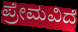
ಪ್ರೇಮವಿದೆ